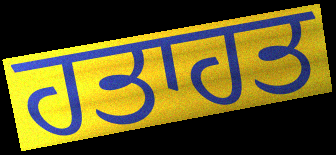
ਹਤਾਹਤ